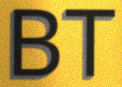
BT